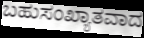
ಬಹುಸಂಖ್ಯಾತವಾದ